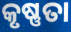
କୃଷ୍ଣତା